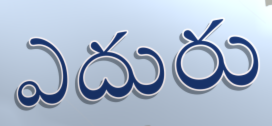
ఎదురు